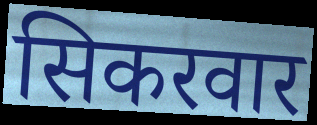
सिकरवार